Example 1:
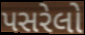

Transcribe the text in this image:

પસરેલો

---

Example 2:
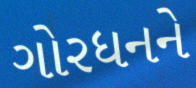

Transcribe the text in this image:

ગોરધનને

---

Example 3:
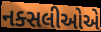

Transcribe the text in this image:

નક્સલીઓએ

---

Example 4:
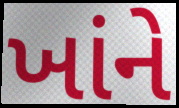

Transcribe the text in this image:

ખાંને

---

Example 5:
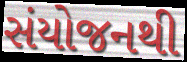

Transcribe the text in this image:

સંયોજનથી